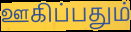
ஊகிப்பதும்